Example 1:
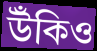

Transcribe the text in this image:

উঁকিও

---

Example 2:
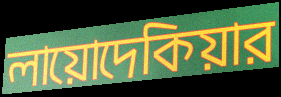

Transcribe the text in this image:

লায়োদেকিয়ার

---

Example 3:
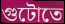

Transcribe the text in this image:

গুটোতে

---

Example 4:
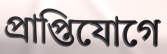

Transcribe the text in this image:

প্রাপ্তিযোগে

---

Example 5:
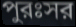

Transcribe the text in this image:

পুরঃসর